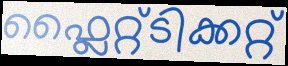
ഫ്ലൈറ്റ്ടിക്കറ്റ്